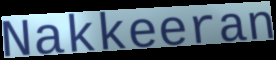
Nakkeeran